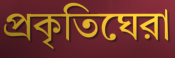
প্রকৃতিঘেরা